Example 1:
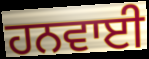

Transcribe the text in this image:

ਹਨਵਾਈ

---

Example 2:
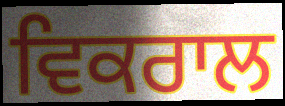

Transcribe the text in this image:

ਵਿਕਰਾਲ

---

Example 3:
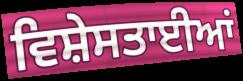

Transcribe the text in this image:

ਵਿਸ਼ੇਸਤਾਈਆਂ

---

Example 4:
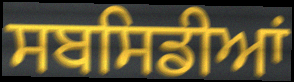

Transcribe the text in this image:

ਸਬਸਿਡੀਆਂ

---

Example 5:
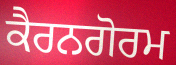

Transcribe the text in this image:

ਕੈਰਨਗੋਰਮ